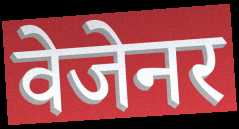
वेजेनर